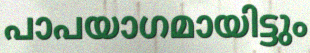
പാപയാഗമായിട്ടും